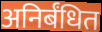
अनिर्बंधित